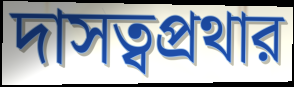
দাসত্বপ্রথার